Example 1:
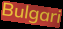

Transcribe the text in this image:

Bulgari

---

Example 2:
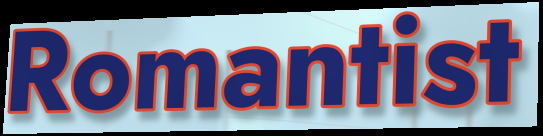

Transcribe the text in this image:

Romantist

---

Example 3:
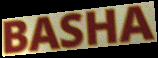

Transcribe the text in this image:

BASHA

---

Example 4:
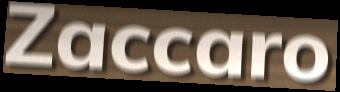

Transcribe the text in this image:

Zaccaro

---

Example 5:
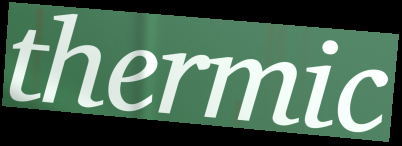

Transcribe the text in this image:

thermic